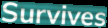
Survives